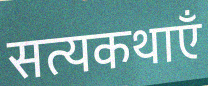
सत्यकथाएँ